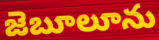
జెబూలూను